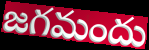
జగమందు